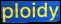
ploidy